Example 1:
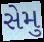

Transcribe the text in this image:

સેમુ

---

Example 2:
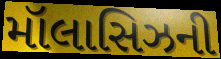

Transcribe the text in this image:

મૉલાસિઝની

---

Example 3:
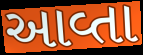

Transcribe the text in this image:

આવ્તા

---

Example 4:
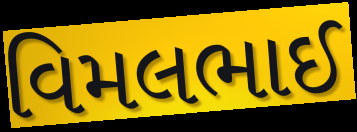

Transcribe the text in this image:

વિમલભાઈ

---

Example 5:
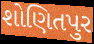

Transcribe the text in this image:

શોણિતપુર